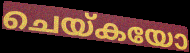
ചെയ്കയോ